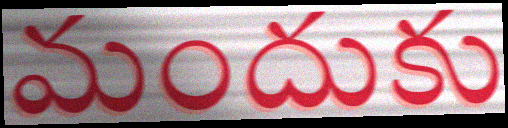
మందుకు